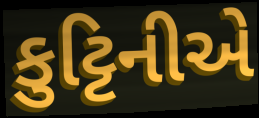
કુટ્ટિનીએ